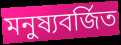
মনুষ্যবর্জিত